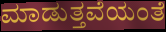
ಮಾಡುತ್ತವೆಯಂತೆ